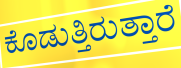
ಕೊಡುತ್ತಿರುತ್ತಾರೆ